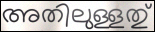
അതിലുള്ളതു്